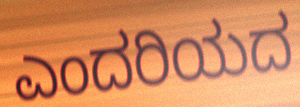
ಎಂದರಿಯದ